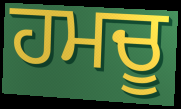
ਹਮਚੂ